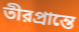
তীরপ্রান্তে